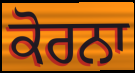
ਕੋਰਨਾ